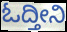
ಓದ್ತೀನಿ